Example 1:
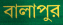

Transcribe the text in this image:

বালাপুর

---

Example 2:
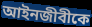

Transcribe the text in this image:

আইনজীবীকে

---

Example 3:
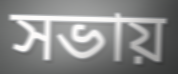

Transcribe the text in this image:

সভায়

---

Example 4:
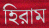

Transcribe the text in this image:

হিরাম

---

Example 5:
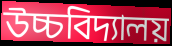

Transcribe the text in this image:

উচ্চবিদ্যালয়